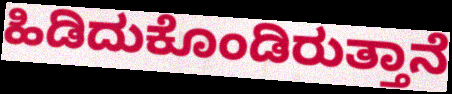
ಹಿಡಿದುಕೊಂಡಿರುತ್ತಾನೆ